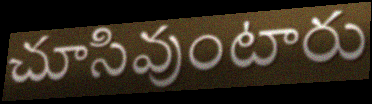
చూసివుంటారు